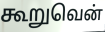
கூறுவென்